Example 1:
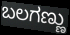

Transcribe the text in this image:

ಬಲಗಣ್ಣು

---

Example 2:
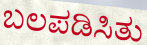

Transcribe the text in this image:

ಬಲಪಡಿಸಿತು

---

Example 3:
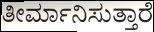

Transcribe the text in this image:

ತೀರ್ಮಾನಿಸುತ್ತಾರೆ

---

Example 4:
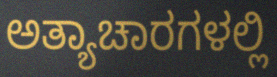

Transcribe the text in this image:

ಅತ್ಯಾಚಾರಗಳಲ್ಲಿ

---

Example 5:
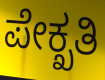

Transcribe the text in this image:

ಪೇಕ್ಖತಿ